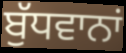
ਬੁੱਧਵਾਨਾਂ